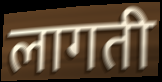
लागती